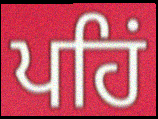
ਪਹਿਂ